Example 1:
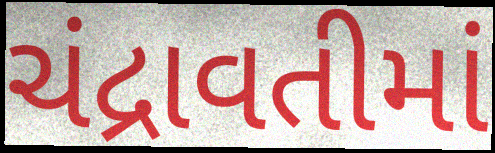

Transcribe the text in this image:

ચંદ્રાવતીમાં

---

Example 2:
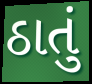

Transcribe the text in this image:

ઠાતું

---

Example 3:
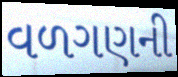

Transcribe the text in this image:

વળગણની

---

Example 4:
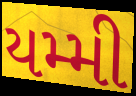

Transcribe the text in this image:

યમ્મી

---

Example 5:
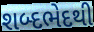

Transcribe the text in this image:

શબ્દભેદથી